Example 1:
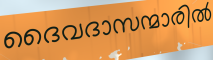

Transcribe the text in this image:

ദൈവദാസന്മാരിൽ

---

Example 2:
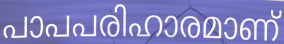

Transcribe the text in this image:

പാപപരിഹാരമാണ്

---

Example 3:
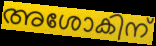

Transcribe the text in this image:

അശോകിന്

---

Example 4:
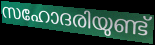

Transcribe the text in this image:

സഹോദരിയുണ്ട്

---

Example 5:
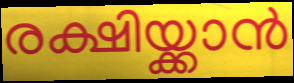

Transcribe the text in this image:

രക്ഷിയ്ക്കാൻ